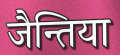
जैन्तिया